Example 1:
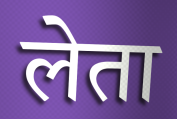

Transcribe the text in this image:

लेता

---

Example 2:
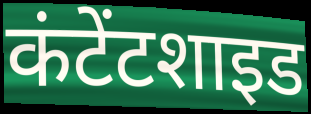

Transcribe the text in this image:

कंटेंटशाइड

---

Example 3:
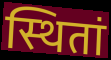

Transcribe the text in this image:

स्थितां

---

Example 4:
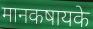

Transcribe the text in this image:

मानकषायके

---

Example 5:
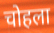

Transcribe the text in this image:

चोहला